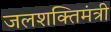
जलशक्तिमंत्री